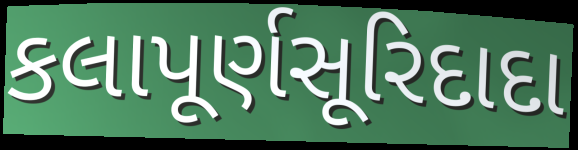
કલાપૂર્ણસૂરિદાદા